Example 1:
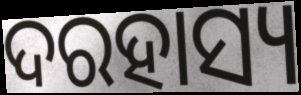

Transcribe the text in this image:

ଦରହାସ୍ୟ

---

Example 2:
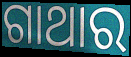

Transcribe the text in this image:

ଗାଥାର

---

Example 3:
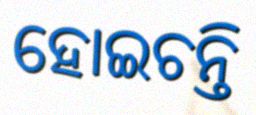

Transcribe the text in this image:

ହୋଇଚନ୍ତି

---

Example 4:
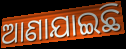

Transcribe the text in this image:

ଆଣାଯାଇଛି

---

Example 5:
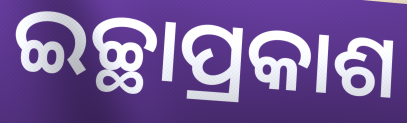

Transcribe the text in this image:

ଇଚ୍ଛାପ୍ରକାଶ